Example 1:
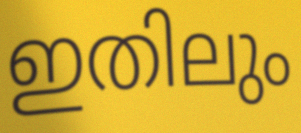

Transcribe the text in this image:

ഇതിലും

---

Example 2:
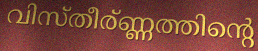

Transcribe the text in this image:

വിസ്തീര്ണ്ണത്തിന്റെ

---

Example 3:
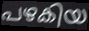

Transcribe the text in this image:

പഴകിയ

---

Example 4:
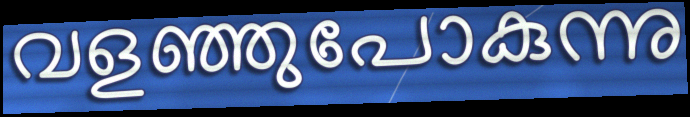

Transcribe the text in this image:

വളഞ്ഞുപോകുന്നു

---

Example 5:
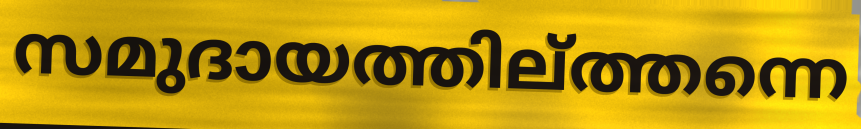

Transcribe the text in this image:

സമുദായത്തില്ത്തന്നെ